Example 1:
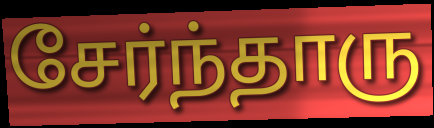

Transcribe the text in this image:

சேர்ந்தாரு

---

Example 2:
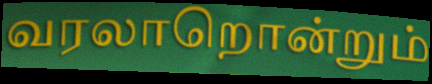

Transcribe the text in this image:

வரலாறொன்றும்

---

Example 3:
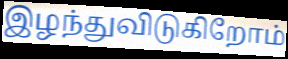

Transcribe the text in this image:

இழந்துவிடுகிறோம்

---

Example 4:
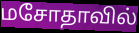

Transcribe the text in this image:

மசோதாவில்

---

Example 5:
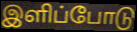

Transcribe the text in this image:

இளிப்போடு